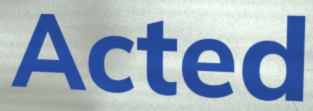
Acted